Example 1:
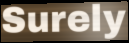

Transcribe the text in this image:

Surely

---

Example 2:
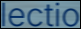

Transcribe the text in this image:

lectio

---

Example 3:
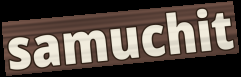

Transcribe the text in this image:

samuchit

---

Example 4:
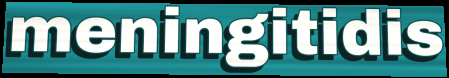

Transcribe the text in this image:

meningitidis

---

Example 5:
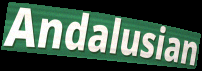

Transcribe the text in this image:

Andalusian